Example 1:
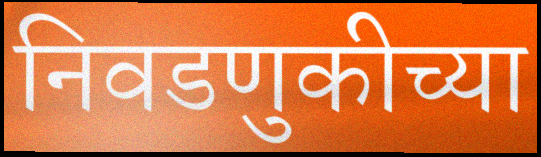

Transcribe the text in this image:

निवडणुकीच्या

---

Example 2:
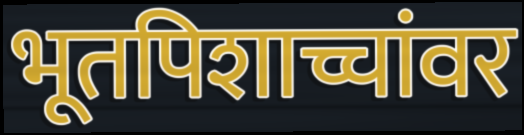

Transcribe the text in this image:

भूतपिशाच्चांवर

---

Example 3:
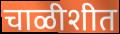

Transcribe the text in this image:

चाळीशीत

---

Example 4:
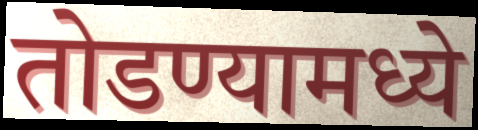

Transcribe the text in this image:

तोडण्यामध्ये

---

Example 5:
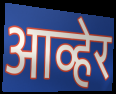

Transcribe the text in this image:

आव्हेर